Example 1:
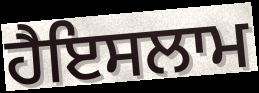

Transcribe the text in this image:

ਹੈਇਸਲਾਮ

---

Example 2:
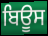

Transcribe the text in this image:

ਬਿਊਸ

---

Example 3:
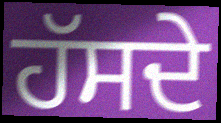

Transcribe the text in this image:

ਹੱਸਦੇ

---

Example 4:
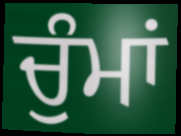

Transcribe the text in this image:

ਚੁੰਮਾਂ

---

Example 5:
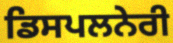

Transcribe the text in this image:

ਡਿਸਪਲਨੇਰੀ